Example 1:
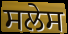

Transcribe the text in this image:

ਸਲੇਸ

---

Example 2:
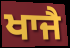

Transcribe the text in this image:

ਖਾਜੈ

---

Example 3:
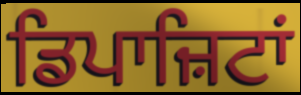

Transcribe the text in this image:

ਡਿਪਾਜ਼ਿਟਾਂ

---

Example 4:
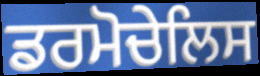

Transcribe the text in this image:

ਡਰਮੋਚੇਲਿਸ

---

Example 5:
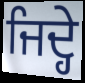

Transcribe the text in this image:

ਜਿਦ੍ਹੇ